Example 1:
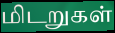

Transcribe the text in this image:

மிடறுகள்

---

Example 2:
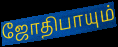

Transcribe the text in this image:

ஜோதிபாயும்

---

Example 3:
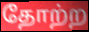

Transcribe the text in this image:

தோற்ற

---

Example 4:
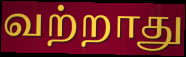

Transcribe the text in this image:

வற்றாது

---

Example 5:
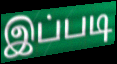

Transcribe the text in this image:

இப்படி